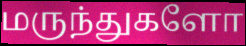
மருந்துகளோ